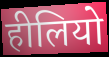
हीलियो